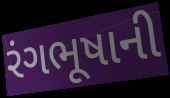
રંગભૂષાની